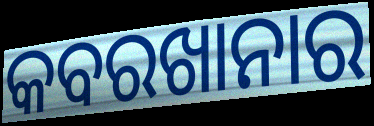
କବରଖାନାର